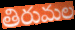
తిరుమల